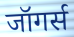
जॉगर्स